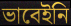
ভাবেইনি